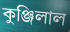
কুঞ্জিলাল